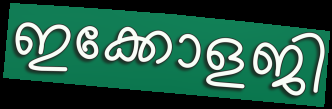
ഇക്കോളജി